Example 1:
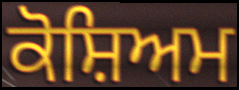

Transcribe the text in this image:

ਕੋਸ਼ਿਅਮ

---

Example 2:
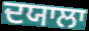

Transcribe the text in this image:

ਦਯਾਲਾ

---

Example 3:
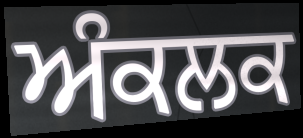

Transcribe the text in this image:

ਅੰਕਲਕ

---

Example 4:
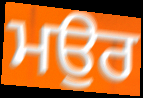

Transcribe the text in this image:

ਮਉਰ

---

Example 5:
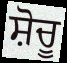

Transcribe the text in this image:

ਸ਼ੋਚੂ